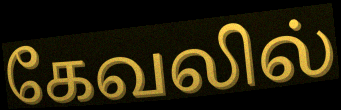
கேவலில்